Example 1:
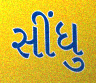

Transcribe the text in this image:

સીંધુ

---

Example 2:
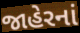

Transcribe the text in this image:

જાહેરનાં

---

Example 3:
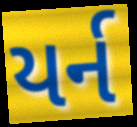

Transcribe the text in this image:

યર્ન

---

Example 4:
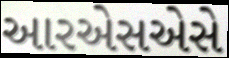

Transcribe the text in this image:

આરએસએસે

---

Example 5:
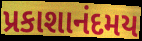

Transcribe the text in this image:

પ્રકાશાનંદમય